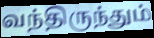
வந்திருந்தும்